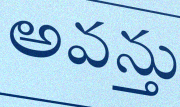
అవన్తు